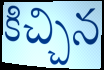
కిచ్చిన